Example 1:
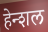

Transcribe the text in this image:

हेन्शल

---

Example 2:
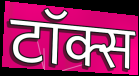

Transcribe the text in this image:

टॉक्स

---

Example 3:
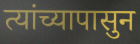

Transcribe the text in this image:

त्यांच्यापासुन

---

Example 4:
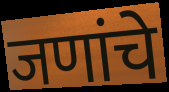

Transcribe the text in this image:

जणांचे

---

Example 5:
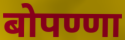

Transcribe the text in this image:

बोपण्णा